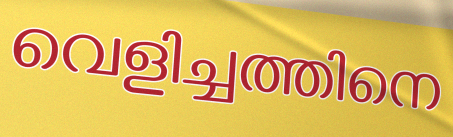
വെളിച്ചത്തിനെ